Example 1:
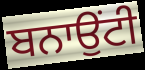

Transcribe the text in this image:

ਬਨਾਉਂਟੀ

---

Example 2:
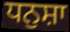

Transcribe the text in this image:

ਧਨੁਸ਼ਾ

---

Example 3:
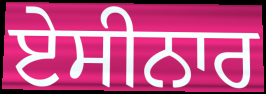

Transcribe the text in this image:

ਏਸੀਨਾਰ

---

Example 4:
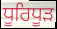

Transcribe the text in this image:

ਧੂਰਿਧੂੜ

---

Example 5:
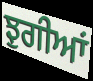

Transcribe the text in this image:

ਝੁਗੀਆਂ